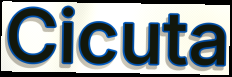
Cicuta